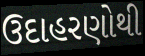
ઉદાહરણોથી